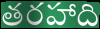
తరహాది